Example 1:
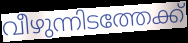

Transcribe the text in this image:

വീഴുന്നിടത്തേക്ക്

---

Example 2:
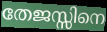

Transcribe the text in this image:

തേജസ്സിനെ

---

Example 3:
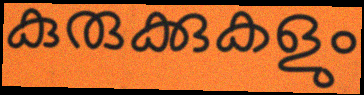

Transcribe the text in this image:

കുരുക്കുകളും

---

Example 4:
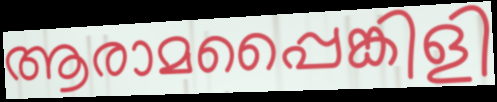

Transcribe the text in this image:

ആരാമപ്പൈങ്കിളി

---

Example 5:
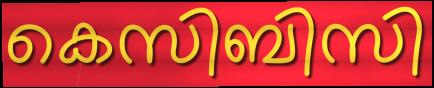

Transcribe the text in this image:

കെസിബിസി